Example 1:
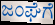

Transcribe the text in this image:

ಜಂಘೆಗೆ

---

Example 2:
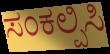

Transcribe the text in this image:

ಸಂಕಲ್ಪಿಸಿ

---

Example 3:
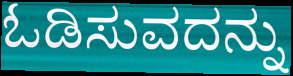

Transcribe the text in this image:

ಓಡಿಸುವದನ್ನು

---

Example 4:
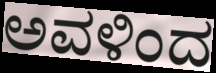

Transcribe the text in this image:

ಅವಳಿಂದ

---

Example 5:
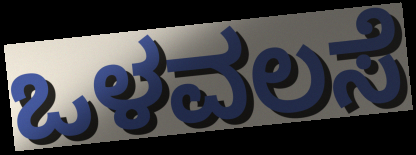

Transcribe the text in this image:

ಒಳವಲಸೆ